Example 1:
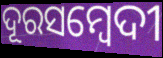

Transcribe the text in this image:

ଦୂରସମ୍ବେଦୀ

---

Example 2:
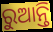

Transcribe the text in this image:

ରୁଆନ୍ତି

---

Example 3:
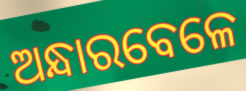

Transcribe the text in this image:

ଅନ୍ଧାରବେଳେ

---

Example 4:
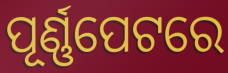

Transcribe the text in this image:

ପୂର୍ଣ୍ଣପେଟରେ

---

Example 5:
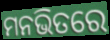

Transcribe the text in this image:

ମନଭିତରେ